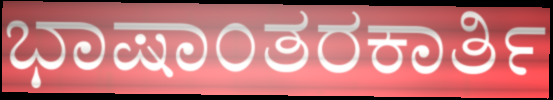
ಭಾಷಾಂತರಕಾರ್ತಿ